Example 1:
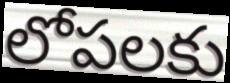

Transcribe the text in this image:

లోపలకు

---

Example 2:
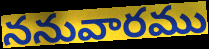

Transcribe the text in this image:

ననువారము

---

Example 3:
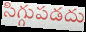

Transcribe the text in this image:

సిగ్గుపడదు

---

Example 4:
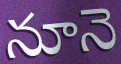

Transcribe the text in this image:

నూనె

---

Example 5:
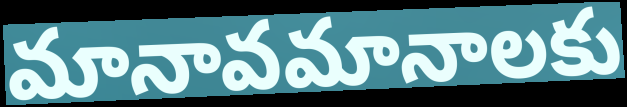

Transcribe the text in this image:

మానావమానాలకు